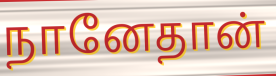
நானேதான்